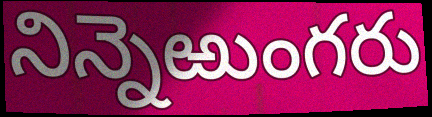
నిన్నెఱుంగరు